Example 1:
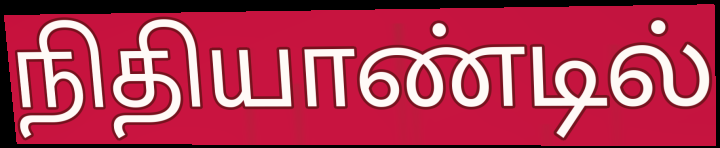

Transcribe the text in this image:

நிதியாண்டில்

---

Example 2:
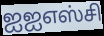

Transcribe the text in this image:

ஐஐஎஸ்சி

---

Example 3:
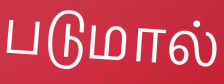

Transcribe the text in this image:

படுமால்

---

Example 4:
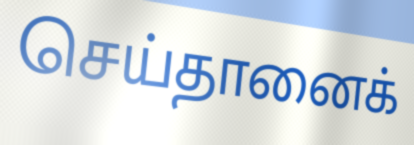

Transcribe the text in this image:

செய்தானைக்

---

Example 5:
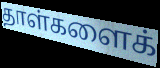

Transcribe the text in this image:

தாள்களைக்